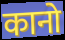
कानो